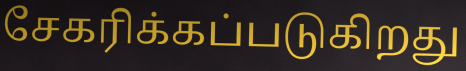
சேகரிக்கப்படுகிறது